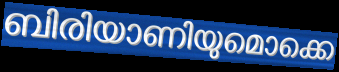
ബിരിയാണിയുമൊക്കെ